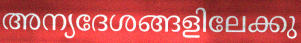
അന്യദേശങ്ങളിലേക്കു